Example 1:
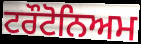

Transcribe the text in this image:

ਟਰੌਟੋਨਿਅਮ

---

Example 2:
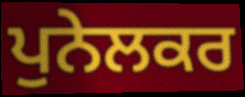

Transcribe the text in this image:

ਪੁਨੇਲਕਰ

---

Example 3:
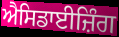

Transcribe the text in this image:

ਐਸਿਡਾਈਜ਼ਿੰਗ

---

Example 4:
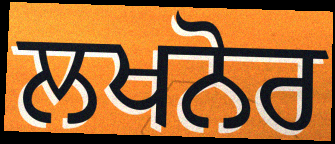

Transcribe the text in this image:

ਲਖਨੋਰ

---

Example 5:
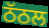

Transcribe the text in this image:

ਠੱਠਲ